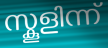
സ്കൂളിന്ന്